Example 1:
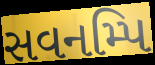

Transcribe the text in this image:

સવનમ્પિ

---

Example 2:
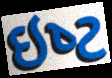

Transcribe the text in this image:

ઇષ્‍ટ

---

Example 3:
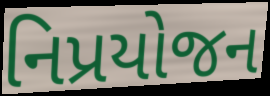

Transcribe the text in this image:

નિપ્રયોજન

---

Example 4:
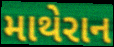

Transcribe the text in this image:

માથેરાન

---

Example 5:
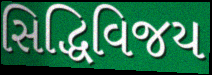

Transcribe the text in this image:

સિદ્ધિવિજય